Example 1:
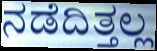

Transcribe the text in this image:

ನಡೆದಿತ್ತಲ್ಲ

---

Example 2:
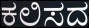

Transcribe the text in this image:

ಕಲಿಸದ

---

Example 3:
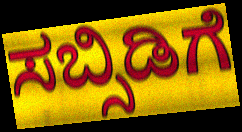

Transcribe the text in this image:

ಸಬ್ಸಿಡಿಗೆ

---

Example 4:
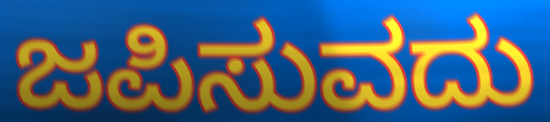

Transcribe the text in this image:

ಜಪಿಸುವದು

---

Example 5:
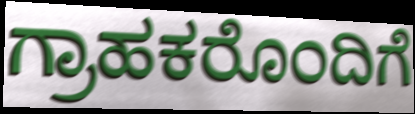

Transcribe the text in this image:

ಗ್ರಾಹಕರೊಂದಿಗೆ